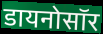
डायनोसॉर